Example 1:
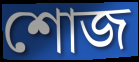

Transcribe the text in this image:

শোজ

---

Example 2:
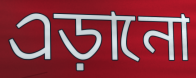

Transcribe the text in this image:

এড়ানো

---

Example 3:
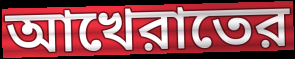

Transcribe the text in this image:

আখেরাতের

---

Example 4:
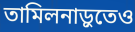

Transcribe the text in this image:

তামিলনাড়ুতেও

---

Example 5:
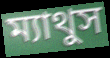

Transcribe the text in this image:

ম্যাথুস